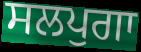
ਸਲਪੁਗਾ